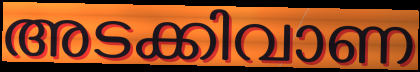
അടക്കിവാണ